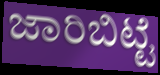
ಜಾರಿಬಿಟ್ಟೆ